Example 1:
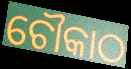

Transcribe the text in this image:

ଚୌକାଠ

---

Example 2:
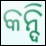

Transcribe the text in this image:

କନ୍ଦି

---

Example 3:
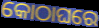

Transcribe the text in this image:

କୋଠାଘରେ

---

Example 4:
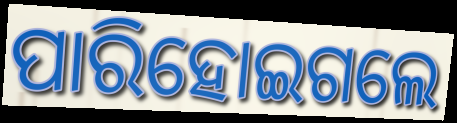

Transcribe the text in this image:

ପାରିହୋଇଗଲେ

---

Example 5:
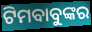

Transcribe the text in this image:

ଟିମବାବୁଙ୍କର